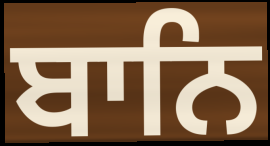
ਬਾਨਿ